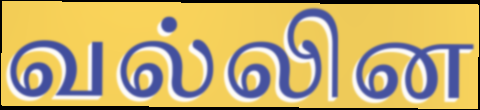
வல்லின